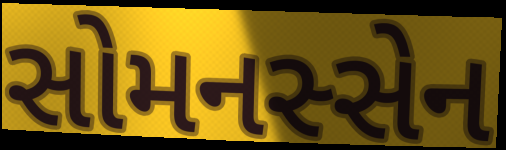
સોમનસ્સેન